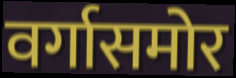
वर्गासमोर